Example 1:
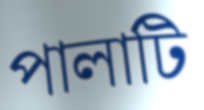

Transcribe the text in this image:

পালাটি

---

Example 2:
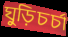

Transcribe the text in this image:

ঘুড়িচর্চা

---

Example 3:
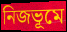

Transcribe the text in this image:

নিজভূমে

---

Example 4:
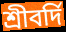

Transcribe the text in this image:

শ্রীবর্দি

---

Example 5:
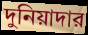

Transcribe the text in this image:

দুনিয়াদার